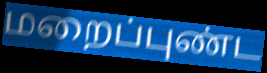
மறைப்புண்ட